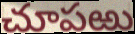
చూపఱు